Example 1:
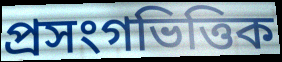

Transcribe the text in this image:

প্ৰসংগভিত্তিক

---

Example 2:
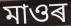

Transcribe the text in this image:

মাওৰ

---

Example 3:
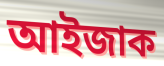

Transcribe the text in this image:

আইজাক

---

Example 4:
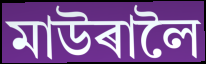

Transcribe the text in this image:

মাউৰালৈ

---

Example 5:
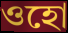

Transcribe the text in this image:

ওহো